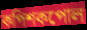
কপিশকপোল